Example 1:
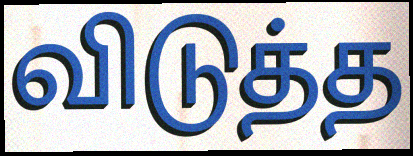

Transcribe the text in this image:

விடுத்த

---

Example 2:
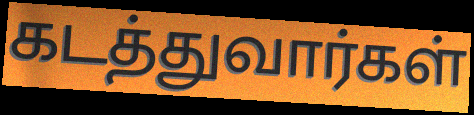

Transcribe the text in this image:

கடத்துவார்கள்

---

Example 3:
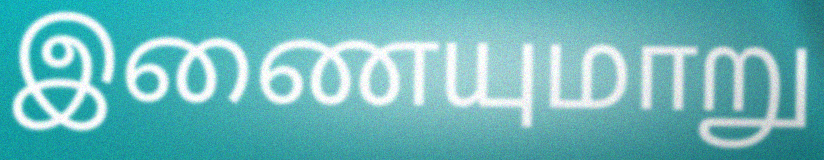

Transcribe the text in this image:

இணையுமாறு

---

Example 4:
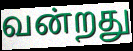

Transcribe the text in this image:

வன்றது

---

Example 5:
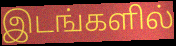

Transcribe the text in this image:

இடங்களில்